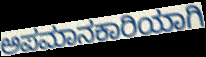
ಅಪಮಾನಕಾರಿಯಾಗಿ